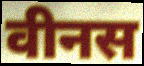
वीनस